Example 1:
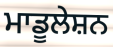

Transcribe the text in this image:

ਮਾਡੂਲੇਸ਼ਨ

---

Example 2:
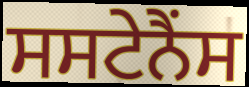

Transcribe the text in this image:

ਸਸਟੇਨੈਂਸ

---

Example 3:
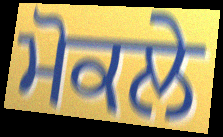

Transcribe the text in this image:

ਮੋਕਲੇ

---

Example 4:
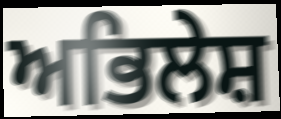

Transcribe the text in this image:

ਅਭਿਲੇਸ਼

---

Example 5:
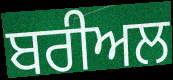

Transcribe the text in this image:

ਬਰੀਅਲ